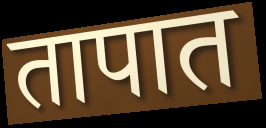
तापात